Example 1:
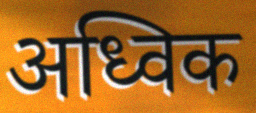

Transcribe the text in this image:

अध्विक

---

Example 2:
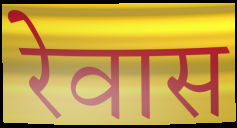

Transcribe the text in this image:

रेवास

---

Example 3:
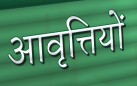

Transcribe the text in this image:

आवृत्तियों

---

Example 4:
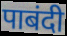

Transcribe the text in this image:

पाबंदी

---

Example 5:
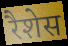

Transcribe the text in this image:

रैशेस